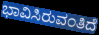
ಭಾವಿಸಿರುವಂತಿದೆ